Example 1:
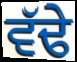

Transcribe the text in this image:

ਵੱਢੇ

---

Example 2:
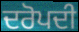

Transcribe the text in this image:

ਦਰੋਪਦੀ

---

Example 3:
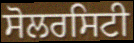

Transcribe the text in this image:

ਸੋਲਰਸਿਟੀ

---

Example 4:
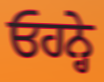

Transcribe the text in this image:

ਓਹਨ੍ਹੇ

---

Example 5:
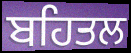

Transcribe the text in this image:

ਬਹਿਤਲ